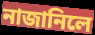
নাজানিলে